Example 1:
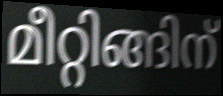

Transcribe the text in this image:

മീറ്റിങ്ങിന്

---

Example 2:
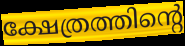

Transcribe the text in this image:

ക്ഷേത്രത്തിന്റെ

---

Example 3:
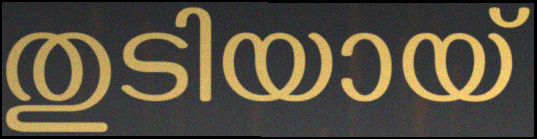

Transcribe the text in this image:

തുടിയായ്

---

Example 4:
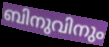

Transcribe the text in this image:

ബിനുവിനും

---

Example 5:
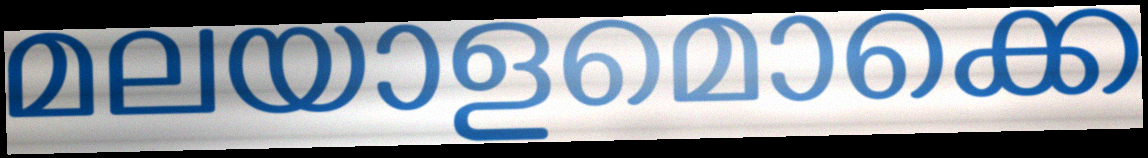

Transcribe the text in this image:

മലയാളമൊക്കെ